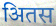
अितस